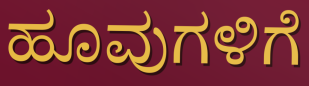
ಹೂವುಗಳಿಗೆ